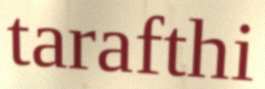
tarafthi